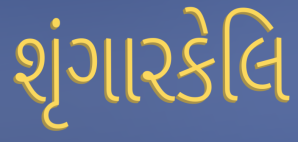
શૃંગારકેલિ